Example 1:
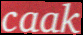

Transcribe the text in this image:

caak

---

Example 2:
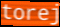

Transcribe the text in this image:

torej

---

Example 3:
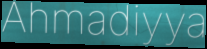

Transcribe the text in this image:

Ahmadiyya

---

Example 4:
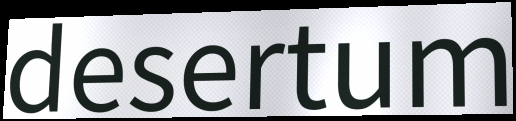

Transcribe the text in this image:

desertum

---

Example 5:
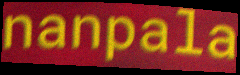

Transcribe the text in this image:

nanpala